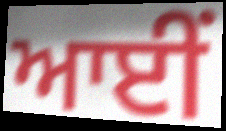
ਆਈਂ